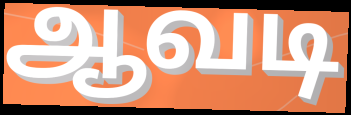
ஆவடி